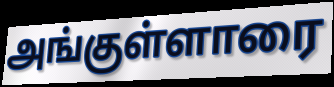
அங்குள்ளாரை